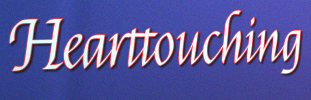
Hearttouching